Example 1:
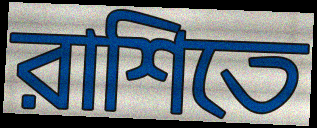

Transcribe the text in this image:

রাশিতে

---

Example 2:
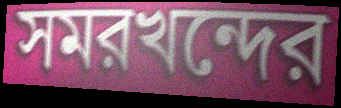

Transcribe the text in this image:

সমরখন্দের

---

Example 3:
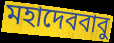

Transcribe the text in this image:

মহাদেববাবু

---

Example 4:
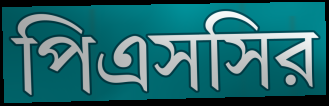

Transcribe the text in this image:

পিএসসির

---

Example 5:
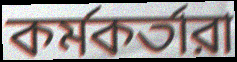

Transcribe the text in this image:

কর্মকর্তারা